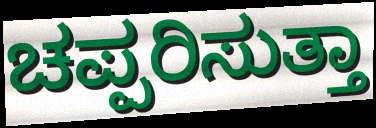
ಚಪ್ಪರಿಸುತ್ತಾ